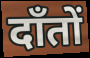
दाँतों